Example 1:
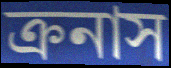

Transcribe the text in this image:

ক্রনাস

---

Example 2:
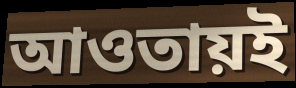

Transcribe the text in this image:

আওতায়ই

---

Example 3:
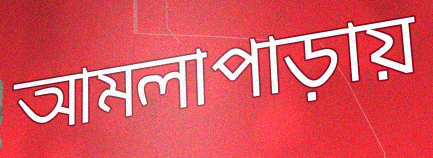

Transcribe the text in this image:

আমলাপাড়ায়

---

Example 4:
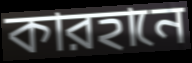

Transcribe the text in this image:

কারহানে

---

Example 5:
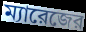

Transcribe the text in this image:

ম্যারেজের